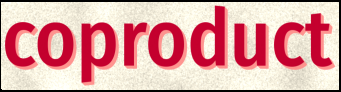
coproduct